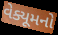
વેક્યૂમનો